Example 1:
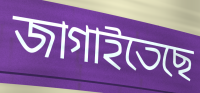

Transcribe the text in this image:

জাগাইতেছে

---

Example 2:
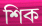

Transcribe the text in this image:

শিক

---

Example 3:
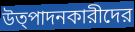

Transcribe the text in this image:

উত্পাদনকারীদের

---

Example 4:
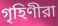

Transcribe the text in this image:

গৃহিণীরা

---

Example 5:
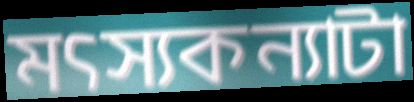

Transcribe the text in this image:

মৎস্যকন্যাটা